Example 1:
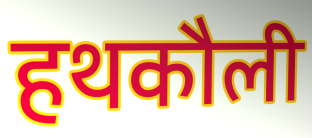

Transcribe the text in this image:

हथकौली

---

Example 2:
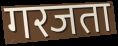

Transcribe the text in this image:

गरजता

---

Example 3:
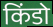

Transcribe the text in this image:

किंडो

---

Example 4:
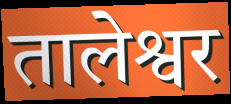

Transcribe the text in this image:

तालेश्वर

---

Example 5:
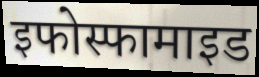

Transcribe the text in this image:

इफोस्फामाइड